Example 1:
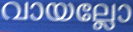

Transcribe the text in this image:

വായല്ലോ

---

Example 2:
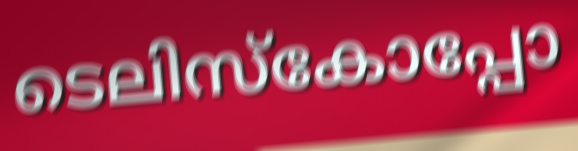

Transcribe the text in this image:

ടെലിസ്കോപ്പോ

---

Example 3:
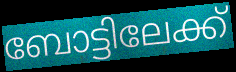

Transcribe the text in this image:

ബോട്ടിലേക്ക്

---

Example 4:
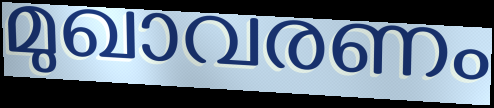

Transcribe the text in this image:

മുഖാവരണം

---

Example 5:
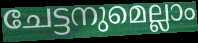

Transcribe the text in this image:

ചേട്ടനുമെല്ലാം